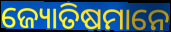
ଜ୍ୟୋତିଷମାନେ